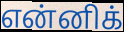
என்னிக்